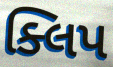
ક્લિપ